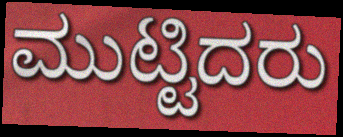
ಮುಟ್ಟಿದರು